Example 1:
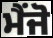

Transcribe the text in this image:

ਮੈਂਜੋ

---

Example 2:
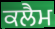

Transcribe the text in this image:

ਕਲੈਮ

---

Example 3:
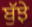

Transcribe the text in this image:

ਬੁੱਝੇ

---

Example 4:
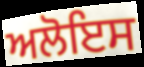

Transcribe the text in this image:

ਅਲੋਇਸ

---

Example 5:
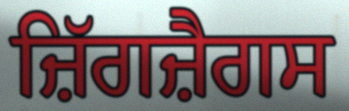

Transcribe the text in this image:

ਜ਼ਿੱਗਜ਼ੈਗਸ